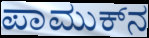
ಪಾಮುಕ್‍ನ